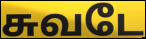
சுவடே